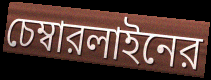
চেম্বারলাইনের